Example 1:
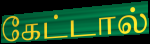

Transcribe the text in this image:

கேட்டால்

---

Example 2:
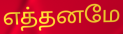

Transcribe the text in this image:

எத்தனமே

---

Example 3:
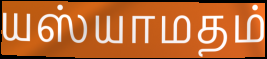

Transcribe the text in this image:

யஸ்யாமதம்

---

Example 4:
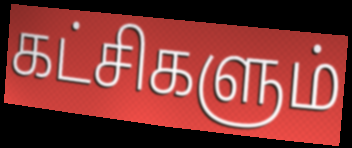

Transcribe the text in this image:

கட்சிகளும்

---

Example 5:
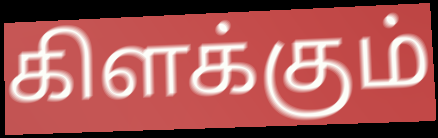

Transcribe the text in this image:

கிளக்கும்